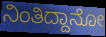
ನಿಂತಿದ್ದಾನೋ